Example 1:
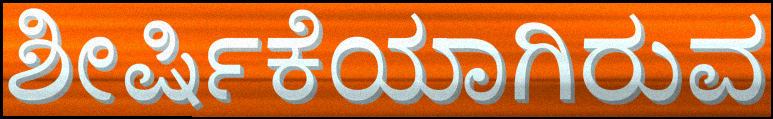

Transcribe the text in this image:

ಶೀರ್ಷಿಕೆಯಾಗಿರುವ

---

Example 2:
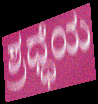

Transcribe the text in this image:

ಶ್ರಧ್ಧೆಯ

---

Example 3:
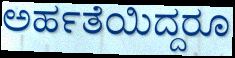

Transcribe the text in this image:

ಅರ್ಹತೆಯಿದ್ದರೂ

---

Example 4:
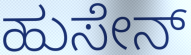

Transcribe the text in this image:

ಹುಸೇನ್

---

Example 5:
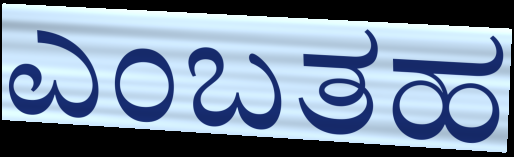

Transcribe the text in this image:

ಎಂಬತಹ